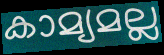
കാമ്യമല്ല